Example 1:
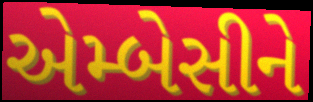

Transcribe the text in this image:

એમ્બેસીને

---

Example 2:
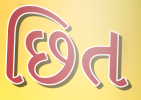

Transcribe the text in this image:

છિત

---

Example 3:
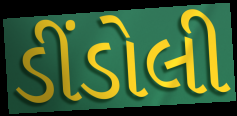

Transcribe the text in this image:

ડીંડોલી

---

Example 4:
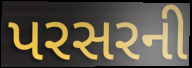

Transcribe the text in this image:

પરસરની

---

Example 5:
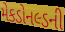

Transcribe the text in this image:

મેકડોનલ્ડની